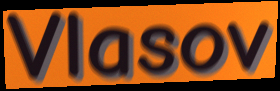
Vlasov